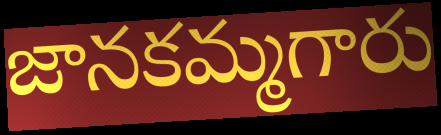
జానకమ్మగారు